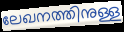
ലേഖനത്തിനുള്ള